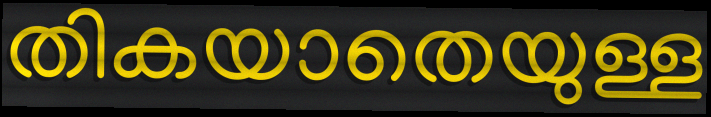
തികയാതെയുള്ള